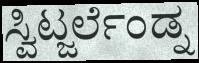
ಸ್ವಿಟ್ಜರ್ಲೆಂಡ್ನ